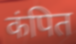
कंपित